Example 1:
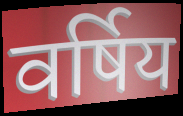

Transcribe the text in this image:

वर्षिय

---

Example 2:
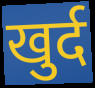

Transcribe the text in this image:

खुर्द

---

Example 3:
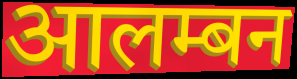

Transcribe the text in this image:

आलम्बन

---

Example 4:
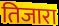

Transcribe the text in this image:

तिजारा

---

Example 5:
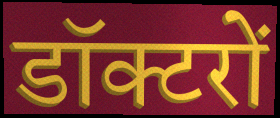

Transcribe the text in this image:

डॉक्टरों